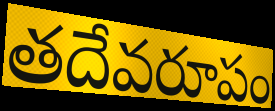
తదేవరూపం